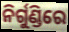
ନିର୍ଗୁଣ୍ଡିରେ